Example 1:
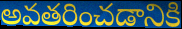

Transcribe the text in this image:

అవతరించడానికి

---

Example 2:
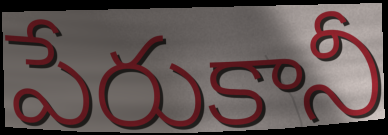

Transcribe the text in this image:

పేరుకానీ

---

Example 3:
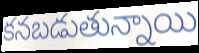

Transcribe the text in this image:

కనబడుతున్నాయి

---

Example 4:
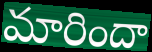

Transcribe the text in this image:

మారిందా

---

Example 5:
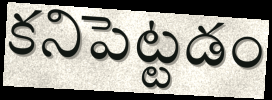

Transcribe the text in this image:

కనిపెట్టడం